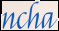
ncha